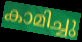
കാമിച്ചു